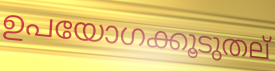
ഉപയോഗക്കൂടുതല്